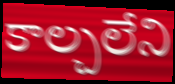
కాల్చలేని